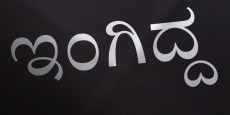
ಇಂಗಿದ್ದ